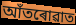
আঁতৰোৱাত